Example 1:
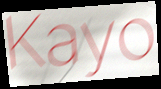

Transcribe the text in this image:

Kayo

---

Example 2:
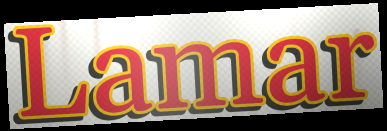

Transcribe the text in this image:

Lamar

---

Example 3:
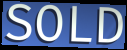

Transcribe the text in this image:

SOLD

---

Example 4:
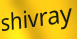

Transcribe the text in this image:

shivray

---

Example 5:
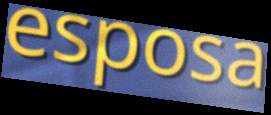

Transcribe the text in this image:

esposa